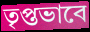
তৃপ্তভাবে